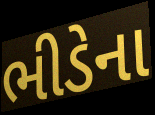
ભીડેના